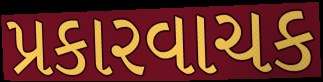
પ્રકારવાચક